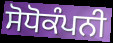
ਸੋਧੋਕੰਪਨੀ